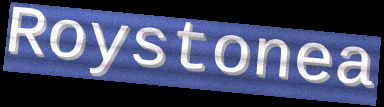
Roystonea